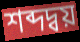
শব্দদ্বয়